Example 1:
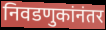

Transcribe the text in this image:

निवडणुकांनंतर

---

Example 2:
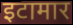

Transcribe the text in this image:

इटामार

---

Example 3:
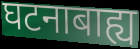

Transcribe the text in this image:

घटनाबाह्य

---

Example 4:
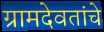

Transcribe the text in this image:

ग्रामदेवतांचे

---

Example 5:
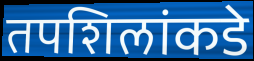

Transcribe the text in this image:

तपशिलांकडे